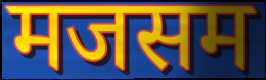
मजसम